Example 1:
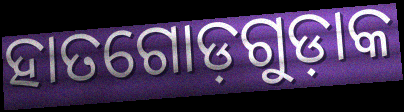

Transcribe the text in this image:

ହାତଗୋଡ଼ଗୁଡ଼ାକ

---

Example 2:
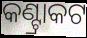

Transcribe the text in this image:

କଣ୍ଟ୍ରାକଟ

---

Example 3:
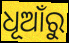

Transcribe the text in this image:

ଧୂଆଁରୁ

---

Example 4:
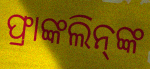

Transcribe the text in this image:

ଫ୍ରାଙ୍କଲିନ୍‌ଙ୍କ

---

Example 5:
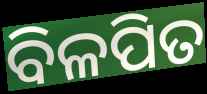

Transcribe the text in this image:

ବିଳପିତ